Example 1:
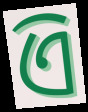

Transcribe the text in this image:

ଏି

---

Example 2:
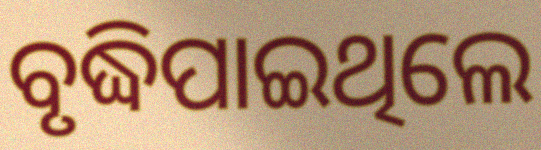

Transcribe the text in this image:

ବୃଦ୍ଧିପାଇଥିଲେ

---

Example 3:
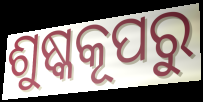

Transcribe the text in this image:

ଶୁଷ୍କକୂପରୁ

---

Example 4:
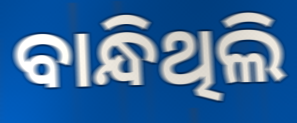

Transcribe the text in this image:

ବାନ୍ଧିଥିଲି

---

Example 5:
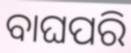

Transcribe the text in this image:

ବାଘପରି